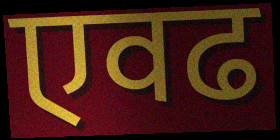
एवढ